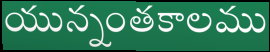
యున్నంతకాలము